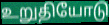
உறுதியோடு